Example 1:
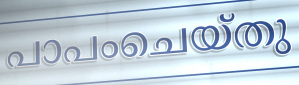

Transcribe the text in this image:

പാപംചെയ്തു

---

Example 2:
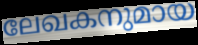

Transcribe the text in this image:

ലേഖകനുമായ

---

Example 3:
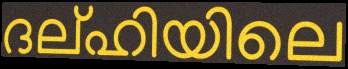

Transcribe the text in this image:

ദല്ഹിയിലെ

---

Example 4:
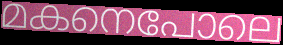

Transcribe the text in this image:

മകനെപോലെ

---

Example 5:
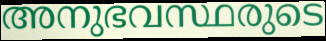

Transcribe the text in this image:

അനുഭവസ്ഥരുടെ